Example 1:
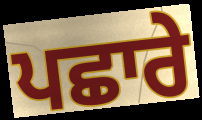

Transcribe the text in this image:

ਪਛਾਰੇ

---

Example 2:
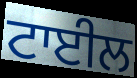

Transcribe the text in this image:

ਟਾਈਲ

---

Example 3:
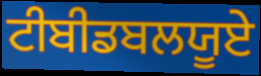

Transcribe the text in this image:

ਟੀਬੀਡਬਲਯੂਏ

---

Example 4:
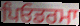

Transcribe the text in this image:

ਪਿਓਡਰਮਾ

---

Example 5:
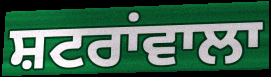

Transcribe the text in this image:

ਸ਼ਟਰਾਂਵਾਲਾ